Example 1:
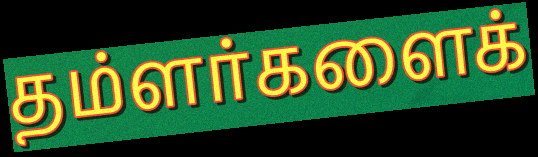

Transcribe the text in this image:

தம்ளர்களைக்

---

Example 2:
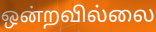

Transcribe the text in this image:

ஒன்றவில்லை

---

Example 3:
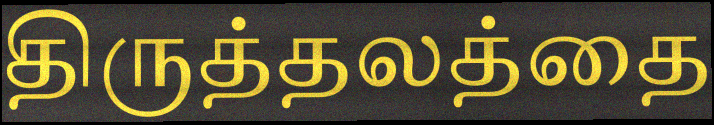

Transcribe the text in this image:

திருத்தலத்தை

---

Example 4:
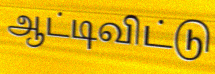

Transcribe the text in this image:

ஆட்டிவிட்டு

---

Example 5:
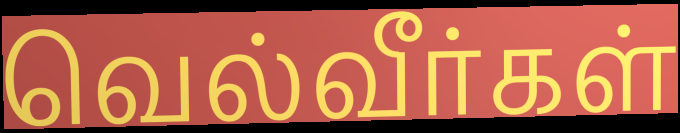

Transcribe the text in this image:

வெல்வீர்கள்